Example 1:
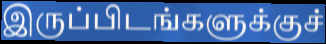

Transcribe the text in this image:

இருப்பிடங்களுக்குச்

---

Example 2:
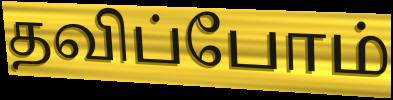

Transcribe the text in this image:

தவிப்போம்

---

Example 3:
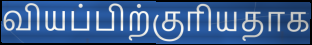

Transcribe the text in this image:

வியப்பிற்குரியதாக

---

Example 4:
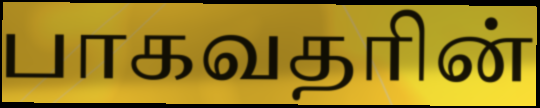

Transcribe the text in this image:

பாகவதரின்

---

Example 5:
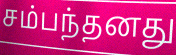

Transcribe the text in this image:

சம்பந்தனது